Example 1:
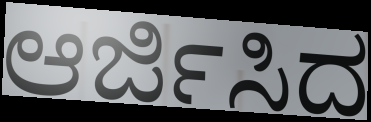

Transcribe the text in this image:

ಆರ್ಜಿಸಿದ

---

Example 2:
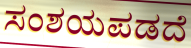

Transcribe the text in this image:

ಸಂಶಯಪಡದೆ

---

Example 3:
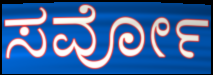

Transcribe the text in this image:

ಸರ್ವೋ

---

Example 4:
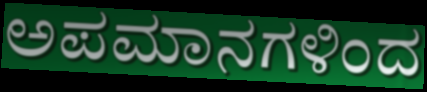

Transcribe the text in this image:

ಅಪಮಾನಗಳಿಂದ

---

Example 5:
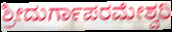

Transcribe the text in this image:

ಶ್ರೀದುರ್ಗಾಪರಮೇಶ್ವರಿ